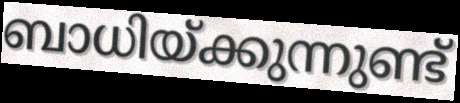
ബാധിയ്ക്കുന്നുണ്ട്